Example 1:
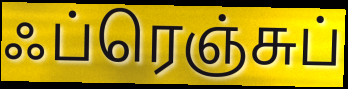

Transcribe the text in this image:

ஃப்ரெஞ்சுப்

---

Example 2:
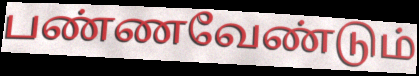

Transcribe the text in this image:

பண்ணவேண்டும்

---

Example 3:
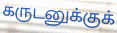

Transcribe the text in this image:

கருடனுக்குக்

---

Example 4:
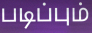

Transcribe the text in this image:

படிப்பும்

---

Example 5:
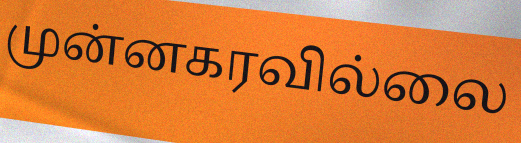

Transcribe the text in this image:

முன்னகரவில்லை